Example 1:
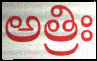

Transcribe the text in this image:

అత్రిః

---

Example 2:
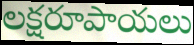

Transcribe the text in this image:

లక్షరూపాయలు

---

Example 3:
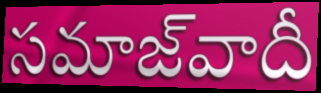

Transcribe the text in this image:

సమాజ్‌వాదీ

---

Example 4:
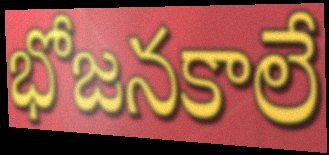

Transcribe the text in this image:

భోజనకాలే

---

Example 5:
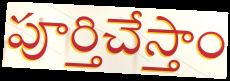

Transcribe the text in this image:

పూర్తిచేస్తాం